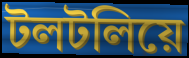
টলটলিয়ে